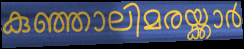
കുഞ്ഞാലിമരയ്ക്കാർ